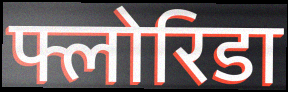
फ्लोरिडा